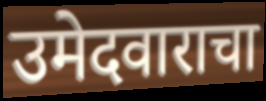
उमेदवाराचा